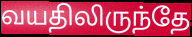
வயதிலிருந்தே